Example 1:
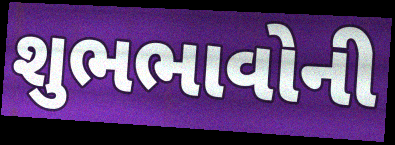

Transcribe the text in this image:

શુભભાવોની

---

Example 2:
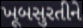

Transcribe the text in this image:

ખૂબસુરતીને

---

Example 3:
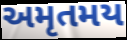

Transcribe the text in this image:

અમૃતમય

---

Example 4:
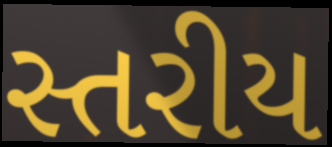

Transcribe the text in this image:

સ્તરીય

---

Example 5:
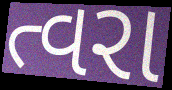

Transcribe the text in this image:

ત્વરા